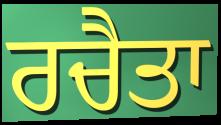
ਰਚੈਤਾ